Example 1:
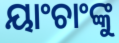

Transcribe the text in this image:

ୟାଂଚାଂଙ୍କୁ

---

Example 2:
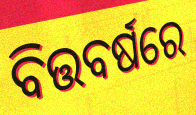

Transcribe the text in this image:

ବିତ୍ତବର୍ଷରେ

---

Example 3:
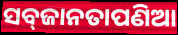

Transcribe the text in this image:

ସବ୍‌ଜାନତାପଣିଆ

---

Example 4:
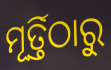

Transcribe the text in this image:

ମୂର୍ତ୍ତିଠାରୁ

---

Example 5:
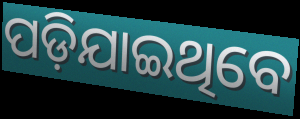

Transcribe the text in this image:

ପଡ଼ିଯାଇଥିବେ